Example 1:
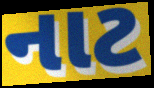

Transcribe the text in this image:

નાટ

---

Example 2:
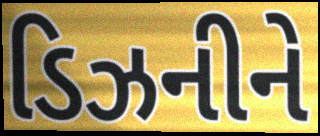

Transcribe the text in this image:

ડિઝનીને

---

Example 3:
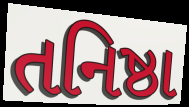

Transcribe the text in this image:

તનિષ્ઠા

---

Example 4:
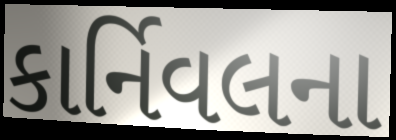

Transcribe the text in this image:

કાર્નિવલના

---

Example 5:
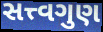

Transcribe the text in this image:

સત્ત્વગુણ